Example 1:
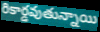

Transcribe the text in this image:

రికార్డవుతున్నాయి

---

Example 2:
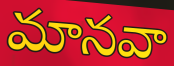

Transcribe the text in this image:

మానవా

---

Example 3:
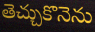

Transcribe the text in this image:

తెచ్చుకొనెను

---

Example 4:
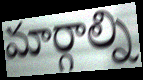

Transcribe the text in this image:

మార్గాల్ని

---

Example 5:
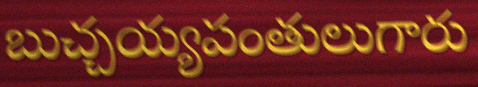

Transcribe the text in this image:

బుచ్చయ్యపంతులుగారు